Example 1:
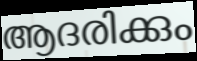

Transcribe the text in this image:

ആദരിക്കും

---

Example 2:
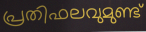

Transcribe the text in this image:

പ്രതിഫലവുമുണ്ട്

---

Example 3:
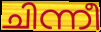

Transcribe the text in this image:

ചിന്നീ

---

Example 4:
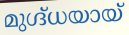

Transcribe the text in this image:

മുഗ്ദ്ധയായ്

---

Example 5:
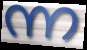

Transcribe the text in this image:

ന്ന